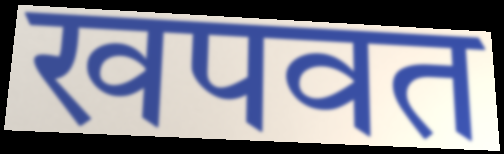
खपवत